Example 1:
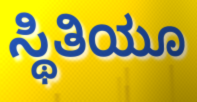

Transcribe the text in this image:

ಸ್ಥಿತಿಯೂ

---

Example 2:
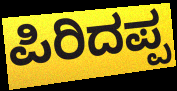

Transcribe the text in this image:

ಪಿರಿದಪ್ಪ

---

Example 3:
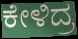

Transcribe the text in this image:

ಕೇಳಿದ್ರ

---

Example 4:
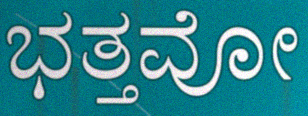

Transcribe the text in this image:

ಭತ್ತವೋ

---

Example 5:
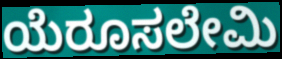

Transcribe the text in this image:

ಯೆರೂಸಲೇಮಿ